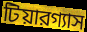
টিয়ারগ্যাস